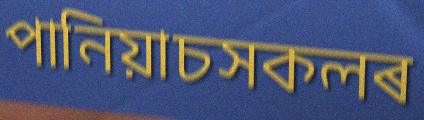
পানিয়াচসকলৰ